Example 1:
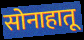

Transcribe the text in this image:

सोनाहातू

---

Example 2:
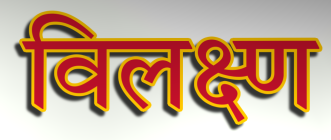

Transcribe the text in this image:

विलक्ष्ण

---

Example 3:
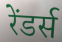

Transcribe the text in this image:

रेंडर्स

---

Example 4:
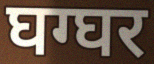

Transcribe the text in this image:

घग्घर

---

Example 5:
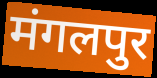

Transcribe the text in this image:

मंगलपुर